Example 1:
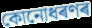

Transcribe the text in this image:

কোনোধৰণৰ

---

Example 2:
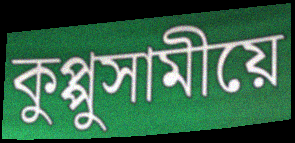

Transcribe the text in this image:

কুপ্পুসামীয়ে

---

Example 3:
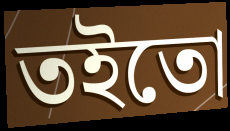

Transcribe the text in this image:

তইতো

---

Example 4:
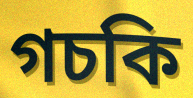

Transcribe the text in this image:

গচকি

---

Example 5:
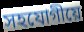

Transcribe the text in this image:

সহযোগীয়ে